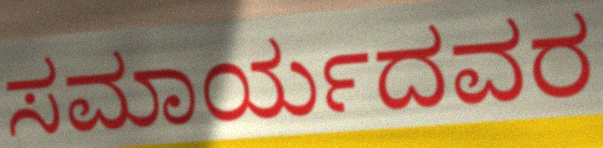
ಸಮಾರ್ಯದವರ